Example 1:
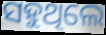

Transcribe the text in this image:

ସହୁଥିଲେ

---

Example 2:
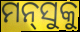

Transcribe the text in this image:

ମନ୍‌ସୁକୁ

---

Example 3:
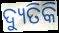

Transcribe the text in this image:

ଦ୍ୟୁତିକି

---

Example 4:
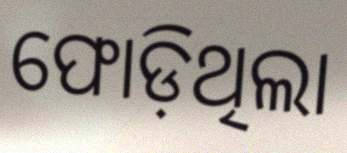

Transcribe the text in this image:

ଫୋଡ଼ିଥିଲା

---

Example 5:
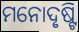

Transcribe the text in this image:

ମନୋଦୃଷ୍ଟି